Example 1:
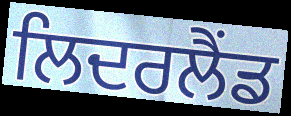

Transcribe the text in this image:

ਲਿਦਰਲੈਂਡ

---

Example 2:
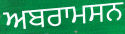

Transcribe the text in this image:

ਅਬਰਾਮਸਨ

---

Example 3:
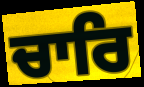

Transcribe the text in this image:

ਚਾਰਿ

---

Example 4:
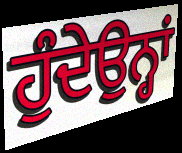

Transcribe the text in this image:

ਹੁੰਦੇਉਨ੍ਹਾਂ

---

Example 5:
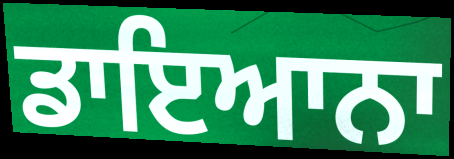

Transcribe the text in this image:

ਡਾਇਆਨਾ